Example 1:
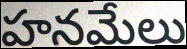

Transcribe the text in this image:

హనమేలు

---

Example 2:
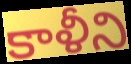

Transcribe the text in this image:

కాళీని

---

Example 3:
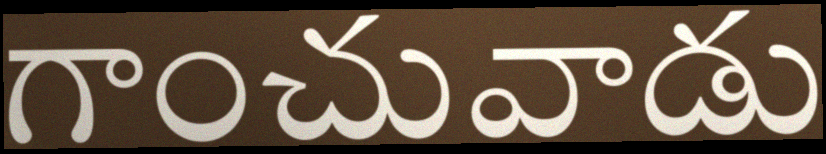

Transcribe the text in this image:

గాంచువాడు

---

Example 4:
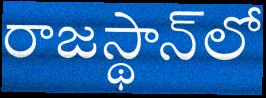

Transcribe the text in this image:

రాజస్థాన్‌లో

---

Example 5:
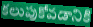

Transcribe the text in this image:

కలుపుకోవడానికి